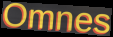
Omnes